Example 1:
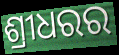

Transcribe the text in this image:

ଶ୍ରୀଧରର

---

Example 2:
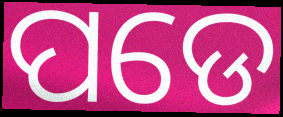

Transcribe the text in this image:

ପଡେ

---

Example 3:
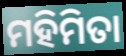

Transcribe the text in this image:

ମହିମିତା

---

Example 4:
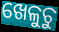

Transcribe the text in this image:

ଖେଳୁଚୁ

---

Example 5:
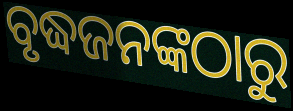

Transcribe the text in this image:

ବୃଦ୍ଧଜନଙ୍କଠାରୁ